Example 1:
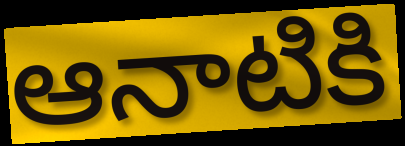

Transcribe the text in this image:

ఆనాటికి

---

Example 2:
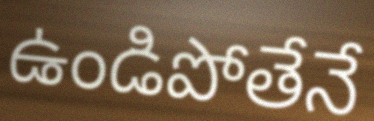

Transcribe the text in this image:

ఉండిపోతేనే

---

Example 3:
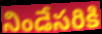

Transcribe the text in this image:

నిండేసరికి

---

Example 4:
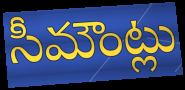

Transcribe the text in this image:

సీమౌంట్లు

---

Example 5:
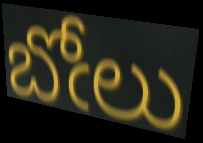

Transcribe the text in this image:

బోఁలు